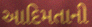
આદિમતાની